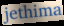
jethima